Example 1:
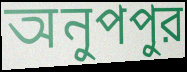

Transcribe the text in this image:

অনুপপুর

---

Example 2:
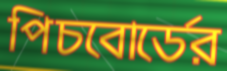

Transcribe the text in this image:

পিচবোর্ডের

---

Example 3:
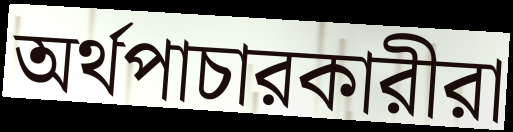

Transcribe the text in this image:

অর্থপাচারকারীরা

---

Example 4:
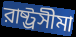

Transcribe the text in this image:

রাষ্ট্রসীমা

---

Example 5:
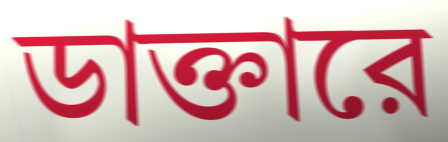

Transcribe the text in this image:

ডাক্তারে